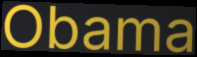
Obama